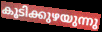
കൂടിക്കുഴയുന്നു